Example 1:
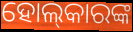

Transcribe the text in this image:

ହୋଲ୍‍କାରଙ୍କ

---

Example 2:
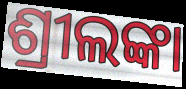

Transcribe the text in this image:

ଶ୍ରୀଲଙ୍କା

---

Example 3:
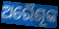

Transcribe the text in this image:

ଅରୈଶୂକ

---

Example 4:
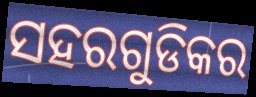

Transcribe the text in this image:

ସହରଗୁଡିକର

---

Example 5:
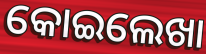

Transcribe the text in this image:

କୋଇଲେଖା